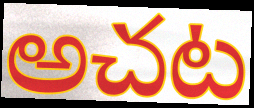
అచట